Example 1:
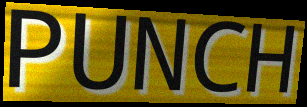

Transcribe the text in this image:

PUNCH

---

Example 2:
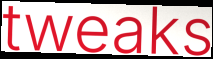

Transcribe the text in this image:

tweaks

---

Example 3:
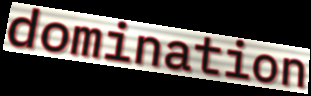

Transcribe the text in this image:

domination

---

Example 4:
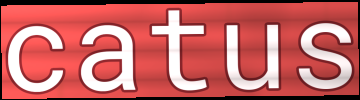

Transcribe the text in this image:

catus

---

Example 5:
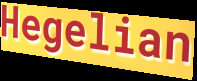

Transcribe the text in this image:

Hegelian